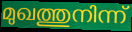
മുഖത്തുനിന്ന്